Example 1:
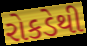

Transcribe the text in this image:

રોકડેથી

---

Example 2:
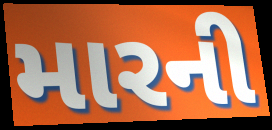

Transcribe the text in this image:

મારની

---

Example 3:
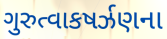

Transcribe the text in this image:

ગુરુત્વાકષર્ઝણના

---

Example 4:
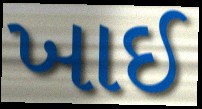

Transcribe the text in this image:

ખાઈ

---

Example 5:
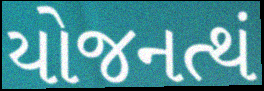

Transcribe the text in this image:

યોજનત્થં